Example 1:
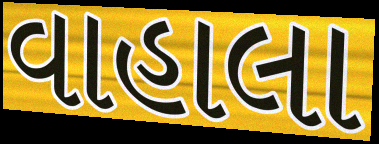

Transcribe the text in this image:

વાહાલા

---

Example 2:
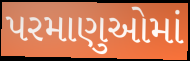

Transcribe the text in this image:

પરમાણુઓમાં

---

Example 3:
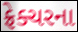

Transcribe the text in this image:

ફ્રેક્ચરના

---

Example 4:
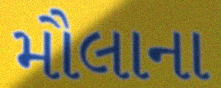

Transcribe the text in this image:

મૌલાના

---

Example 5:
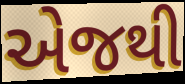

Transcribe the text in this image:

એજથી